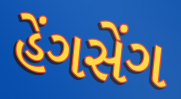
હેંગસેંગ